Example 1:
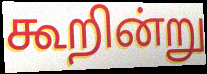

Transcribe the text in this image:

கூறின்று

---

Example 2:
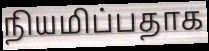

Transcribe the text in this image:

நியமிப்பதாக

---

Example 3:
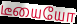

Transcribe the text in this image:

டீயையோ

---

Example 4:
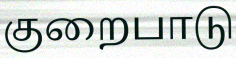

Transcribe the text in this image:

குறைபாடு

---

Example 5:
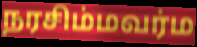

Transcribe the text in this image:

நரசிம்மவர்ம